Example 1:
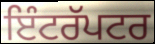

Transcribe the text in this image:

ਇੰਟਰੱਪਟਰ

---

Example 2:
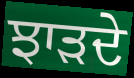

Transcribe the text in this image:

ਝਾੜਦੇ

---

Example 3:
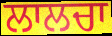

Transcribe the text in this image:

ਲਾਲਚਾ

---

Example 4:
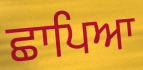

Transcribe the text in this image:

ਛਾਪਿਆ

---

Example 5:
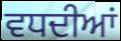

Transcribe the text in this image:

ਵਧਦੀਆਂ